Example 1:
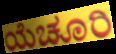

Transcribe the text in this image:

ಯೆಚೂರಿ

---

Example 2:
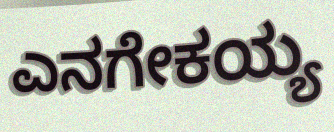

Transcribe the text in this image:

ಎನಗೇಕಯ್ಯ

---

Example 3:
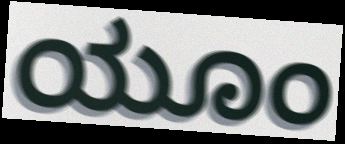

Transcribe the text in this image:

ಯೂಂ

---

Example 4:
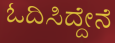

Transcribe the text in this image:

ಓದಿಸಿದ್ದೇನೆ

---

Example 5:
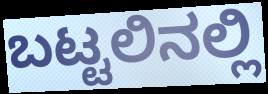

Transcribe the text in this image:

ಬಟ್ಟಲಿನಲ್ಲಿ